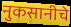
नुकसानीचे